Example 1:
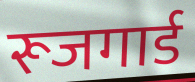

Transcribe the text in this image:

रूजगार्ड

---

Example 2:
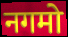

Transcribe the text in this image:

नगमो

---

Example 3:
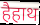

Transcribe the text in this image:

हैहाथ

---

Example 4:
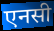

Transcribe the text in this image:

एनसी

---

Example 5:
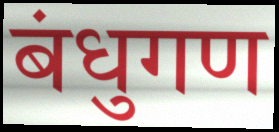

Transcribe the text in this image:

बंधुगण